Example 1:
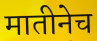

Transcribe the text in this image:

मातीनेच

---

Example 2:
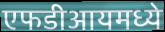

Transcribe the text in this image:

एफडीआयमध्ये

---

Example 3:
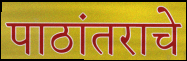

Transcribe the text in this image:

पाठांतराचे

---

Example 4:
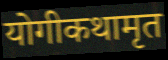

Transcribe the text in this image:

योगीकथामृत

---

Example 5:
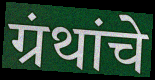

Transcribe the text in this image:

ग्रंथांचे